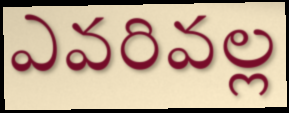
ఎవరివల్ల